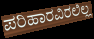
ಪರಿಹಾರವಿರಲಿಲ್ಲ